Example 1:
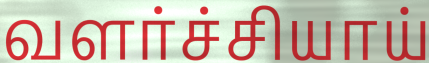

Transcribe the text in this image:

வளர்ச்சியாய்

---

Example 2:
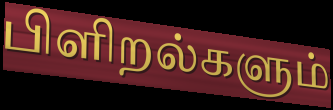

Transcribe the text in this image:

பிளிறல்களும்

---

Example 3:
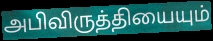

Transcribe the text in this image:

அபிவிருத்தியையும்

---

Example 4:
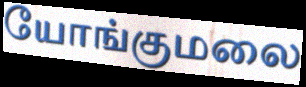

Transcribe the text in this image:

யோங்குமலை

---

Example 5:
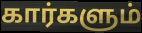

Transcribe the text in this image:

கார்களும்